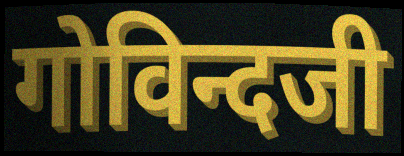
गोविन्दजी